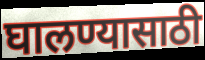
घालण्यासाठी